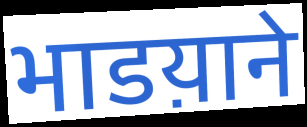
भाडय़ाने